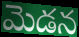
మెడన